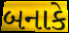
બનાકે